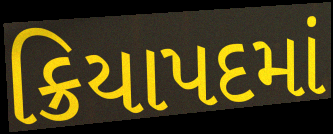
ક્રિયાપદમાં